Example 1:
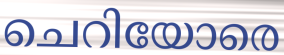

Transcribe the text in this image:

ചെറിയോരെ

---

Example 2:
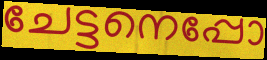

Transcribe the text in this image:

ചേട്ടനെപ്പോ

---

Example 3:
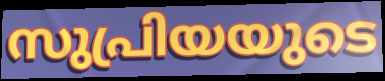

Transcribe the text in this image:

സുപ്രിയയുടെ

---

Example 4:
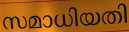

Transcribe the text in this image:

സമാധിയതി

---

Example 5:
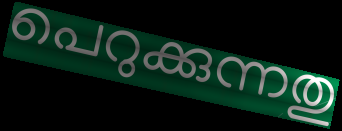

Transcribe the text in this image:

പെറുക്കുന്നതു